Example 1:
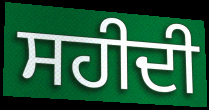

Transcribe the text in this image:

ਸਹੀਦੀ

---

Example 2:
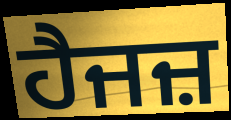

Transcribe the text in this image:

ਹੈਜਜ਼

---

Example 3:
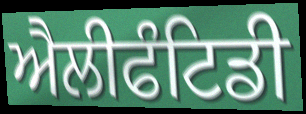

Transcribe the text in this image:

ਐਲੀਫੰਟਿਡੀ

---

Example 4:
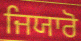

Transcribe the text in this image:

ਜਿਯਾਰੋ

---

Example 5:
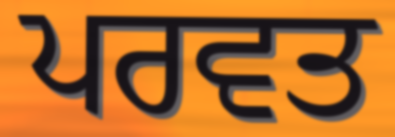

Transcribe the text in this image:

ਪਰਵਤ